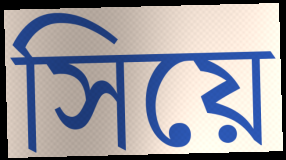
সিয়ে